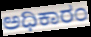
ಅಧಿಕಾರಂ